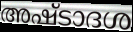
അഷ്ടാദശ